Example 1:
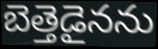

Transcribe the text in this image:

బెత్తెడైనను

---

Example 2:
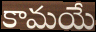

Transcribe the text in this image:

కామయే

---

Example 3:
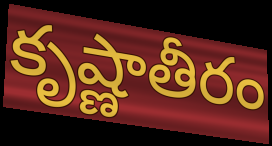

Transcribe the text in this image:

కృష్ణాతీరం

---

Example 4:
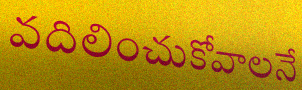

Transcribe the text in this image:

వదిలించుకోవాలనే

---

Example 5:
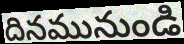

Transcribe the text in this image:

దినమునుండి